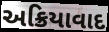
અક્રિયાવાદ